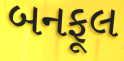
બનફૂલ